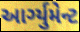
આર્ગ્યુમેન્ટ